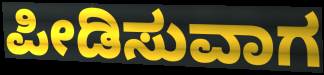
ಪೀಡಿಸುವಾಗ